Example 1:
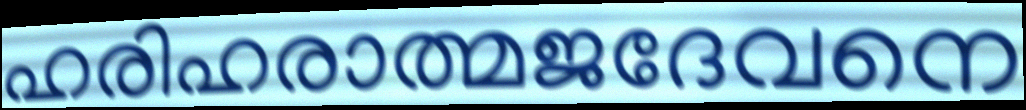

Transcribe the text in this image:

ഹരിഹരാത്മജദേവനെ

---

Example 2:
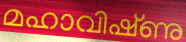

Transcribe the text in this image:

മഹാവിഷ്‌ണു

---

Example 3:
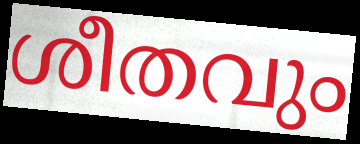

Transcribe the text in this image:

ശീതവും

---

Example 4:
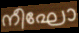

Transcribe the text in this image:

നീഘോ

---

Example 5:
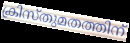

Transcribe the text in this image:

ക്രിസ്തുമതത്തിന്